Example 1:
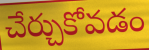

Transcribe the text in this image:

చేర్చుకోవడం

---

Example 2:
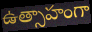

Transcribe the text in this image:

ఉత్సాహంగా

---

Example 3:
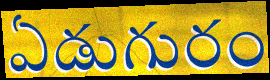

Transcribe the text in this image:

ఏడుగురం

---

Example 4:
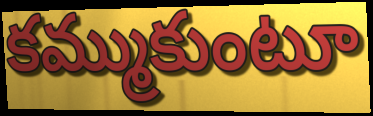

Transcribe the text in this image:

కమ్ముకుంటూ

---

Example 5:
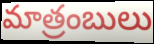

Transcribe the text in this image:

మాత్రంబులు